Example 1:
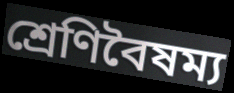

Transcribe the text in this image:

শ্রেণিবৈষম্য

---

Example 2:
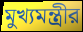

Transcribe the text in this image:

মুখ্যমন্ত্রীর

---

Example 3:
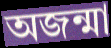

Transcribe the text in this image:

অজন্মা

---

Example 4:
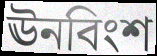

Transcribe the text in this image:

ঊনবিংশ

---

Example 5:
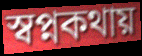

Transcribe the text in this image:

স্বপ্নকথায়